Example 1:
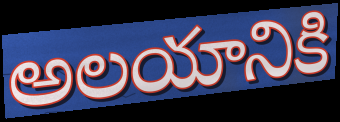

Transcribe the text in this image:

అలయానికి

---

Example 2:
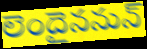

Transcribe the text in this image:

లెందైననున్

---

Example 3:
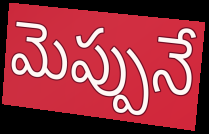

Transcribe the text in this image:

మెప్పునే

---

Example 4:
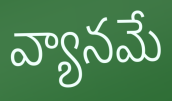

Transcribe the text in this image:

వ్యానమే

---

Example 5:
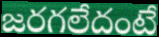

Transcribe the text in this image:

జరగలేదంటే